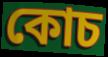
কোচ